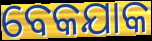
ବେକଯାକ